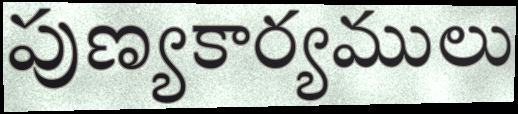
పుణ్యకార్యములు